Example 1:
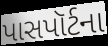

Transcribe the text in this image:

પાસપૉર્ટના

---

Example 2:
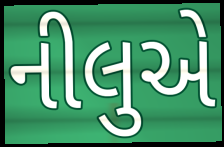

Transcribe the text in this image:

નીલુએ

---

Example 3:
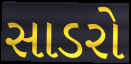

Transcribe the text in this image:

સાડરો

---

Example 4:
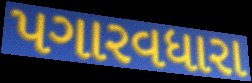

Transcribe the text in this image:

પગારવધારા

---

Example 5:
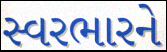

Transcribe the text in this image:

સ્વરભારને